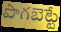
పొగబెట్టే